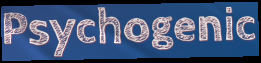
Psychogenic